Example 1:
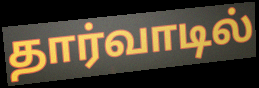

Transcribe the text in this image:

தார்வாடில்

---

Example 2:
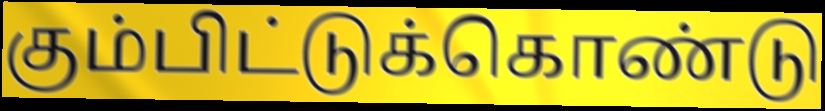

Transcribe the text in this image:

கும்பிட்டுக்கொண்டு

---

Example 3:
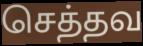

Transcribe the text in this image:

செத்தவ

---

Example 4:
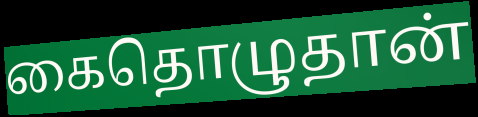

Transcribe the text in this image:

கைதொழுதான்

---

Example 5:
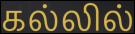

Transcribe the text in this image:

கல்லில்